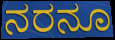
ನರನೂ